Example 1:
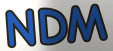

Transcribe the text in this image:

NDM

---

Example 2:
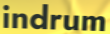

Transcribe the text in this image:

indrum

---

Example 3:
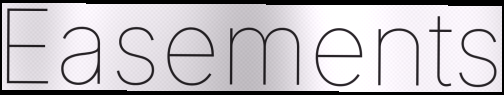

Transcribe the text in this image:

Easements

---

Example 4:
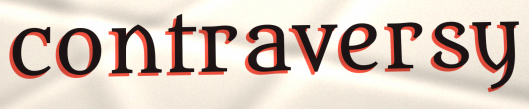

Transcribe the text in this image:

contraversy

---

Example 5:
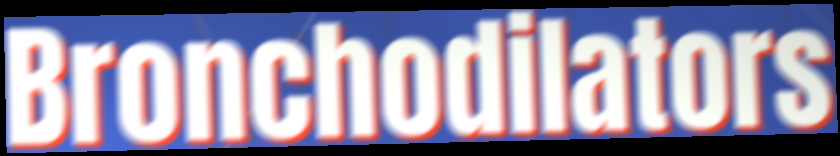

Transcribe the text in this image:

Bronchodilators